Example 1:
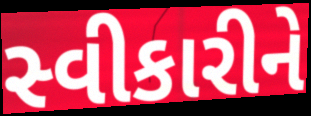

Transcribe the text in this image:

સ્વીકારીને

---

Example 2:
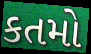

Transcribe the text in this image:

કતમો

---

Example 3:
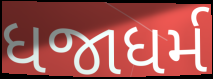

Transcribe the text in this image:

ધજાધર્મ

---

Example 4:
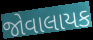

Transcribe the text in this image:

જોવાલાયક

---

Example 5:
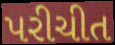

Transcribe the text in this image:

પરીચીત